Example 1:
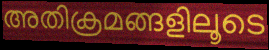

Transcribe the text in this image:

അതിക്രമങ്ങളിലൂടെ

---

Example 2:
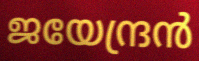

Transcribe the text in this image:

ജയേന്ദ്രൻ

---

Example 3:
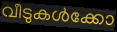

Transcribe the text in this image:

വീടുകൾക്കോ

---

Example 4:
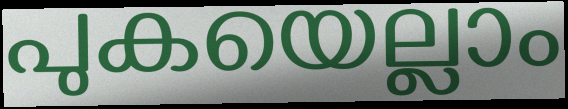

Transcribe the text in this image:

പുകയെല്ലാം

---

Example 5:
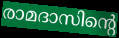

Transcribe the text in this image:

രാമദാസിന്റെ